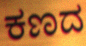
ಕಣದ